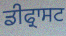
ਡੀਫ੍ਰਾਸਟ